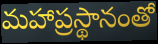
మహాప్రస్థానంతో